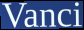
Vanci